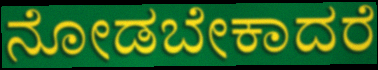
ನೋಡಬೇಕಾದರೆ